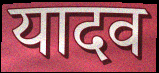
यादव